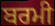
ਬਰਮੀ